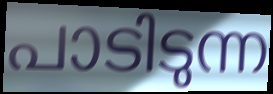
പാടിടുന്ന